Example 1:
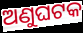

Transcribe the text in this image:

ଅଣୁଘଟକ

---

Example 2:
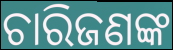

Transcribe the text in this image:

ଚାରିଜଣଙ୍କ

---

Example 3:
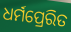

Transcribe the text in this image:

ଧର୍ମପ୍ରେରିତ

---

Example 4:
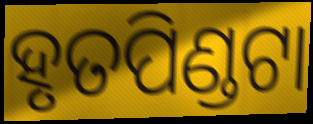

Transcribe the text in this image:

ହୃତପିଣ୍ଡଟା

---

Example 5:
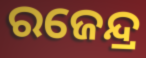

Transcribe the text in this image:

ରଜେନ୍ଦ୍ର